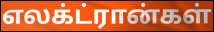
எலக்ட்ரான்கள்